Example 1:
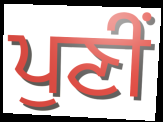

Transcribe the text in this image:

ਪੁਣੀਂ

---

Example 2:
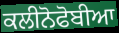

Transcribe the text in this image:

ਕਲੀਨੋਫੋਬੀਆ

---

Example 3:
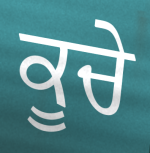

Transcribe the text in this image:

ਕੂਚੇ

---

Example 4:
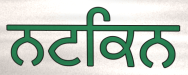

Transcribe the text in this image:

ਨਟਕਿਨ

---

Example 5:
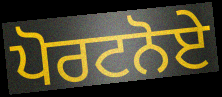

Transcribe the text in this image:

ਪੋਰਟਨੋਏ